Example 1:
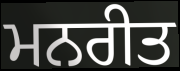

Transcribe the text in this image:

ਮਨਰੀਤ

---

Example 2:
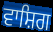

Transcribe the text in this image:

ਵਾਸ਼ਿਗ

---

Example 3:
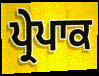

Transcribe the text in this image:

ਪ੍ਰੇਪਾਕ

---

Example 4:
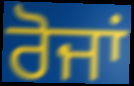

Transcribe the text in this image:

ਰੋਜਾਂ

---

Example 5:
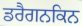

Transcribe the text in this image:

ਡਰੈਗਨਕਿਨ